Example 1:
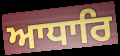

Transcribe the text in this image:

ਆਧਾਰਿ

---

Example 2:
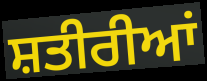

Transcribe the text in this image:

ਸ਼ਤੀਰੀਆਂ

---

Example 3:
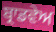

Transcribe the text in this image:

ਬ੍ਰਾਡਵੇਅ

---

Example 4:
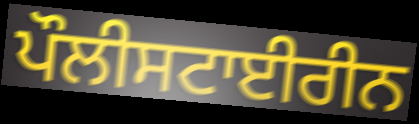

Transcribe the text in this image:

ਪੌਲੀਸਟਾਈਰੀਨ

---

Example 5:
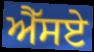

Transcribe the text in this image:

ਐੱਸਏ